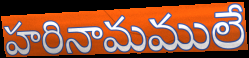
హరినామములే